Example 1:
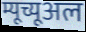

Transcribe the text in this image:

म्यूच्यूअल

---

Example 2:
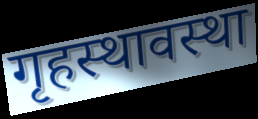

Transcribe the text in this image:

गृहस्थावस्था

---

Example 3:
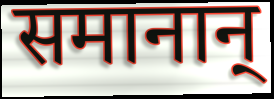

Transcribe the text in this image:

समानान्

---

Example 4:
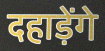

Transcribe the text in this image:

दहाड़ेंगे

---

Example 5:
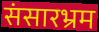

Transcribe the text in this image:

संसारभ्रम